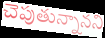
చెపుతున్నానని